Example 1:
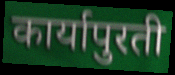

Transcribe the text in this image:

कार्यापुरती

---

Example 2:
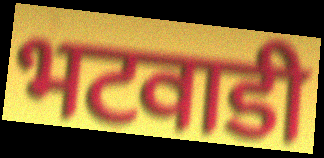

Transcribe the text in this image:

भटवाडी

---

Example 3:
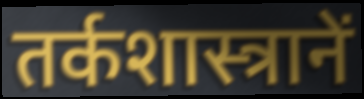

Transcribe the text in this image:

तर्कशास्त्रानें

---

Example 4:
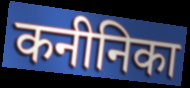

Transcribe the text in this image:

कनीनिका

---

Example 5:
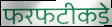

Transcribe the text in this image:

फरफटीकडे